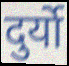
दुर्यो